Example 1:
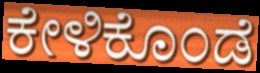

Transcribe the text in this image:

ಕೇಳಿಕೊಂಡೆ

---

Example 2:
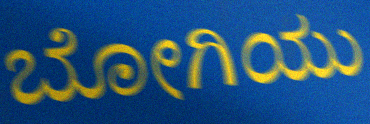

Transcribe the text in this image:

ಬೋಗಿಯು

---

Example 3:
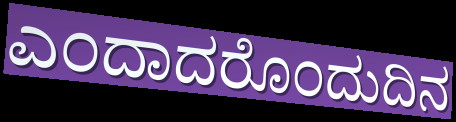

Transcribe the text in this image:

ಎಂದಾದರೊಂದುದಿನ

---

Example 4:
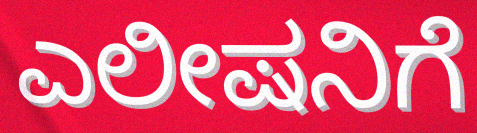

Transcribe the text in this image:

ಎಲೀಷನಿಗೆ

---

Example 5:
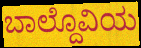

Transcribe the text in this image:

ಬಾಲ್ದೊವಿಯ